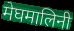
मेघमालिनी